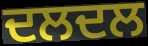
ਦਲਦਲ